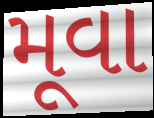
મૂવા